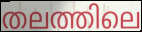
തലത്തിലെ